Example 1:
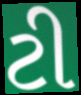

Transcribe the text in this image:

ટી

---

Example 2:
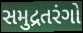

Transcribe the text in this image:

સમુદ્રતરંગો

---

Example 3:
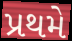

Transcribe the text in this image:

પ્રથમે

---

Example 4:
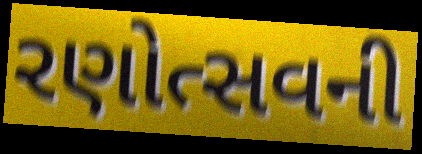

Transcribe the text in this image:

રણોત્સવની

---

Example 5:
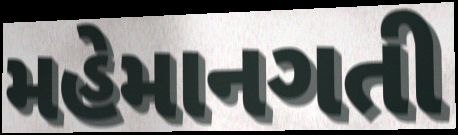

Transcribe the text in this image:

મહેમાનગતી